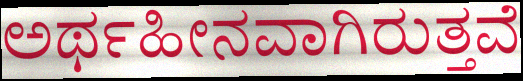
ಅರ್ಥಹೀನವಾಗಿರುತ್ತವೆ